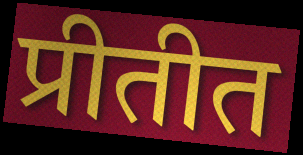
प्रीतीत